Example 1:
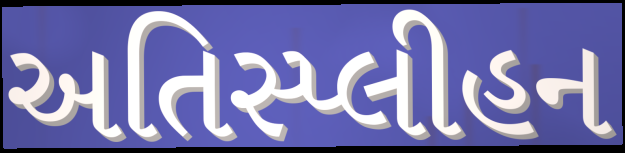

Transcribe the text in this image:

અતિસ્પ્લીહન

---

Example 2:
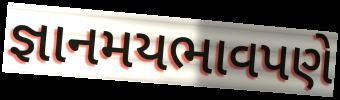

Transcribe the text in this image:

જ્ઞાનમયભાવપણે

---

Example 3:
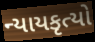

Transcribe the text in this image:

ન્યાયકૃત્યો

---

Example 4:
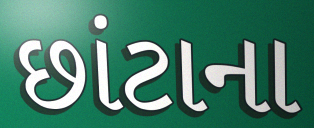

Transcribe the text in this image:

છાંટાના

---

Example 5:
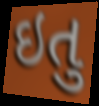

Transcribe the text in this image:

ઇતુ